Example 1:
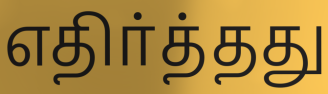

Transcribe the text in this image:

எதிர்த்தது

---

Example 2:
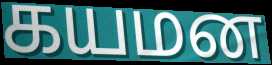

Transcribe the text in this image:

கயமன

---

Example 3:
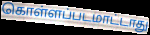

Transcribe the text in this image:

கொள்ளப்படமாட்டாது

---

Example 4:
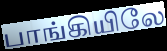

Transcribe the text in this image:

பாங்கியிலே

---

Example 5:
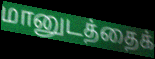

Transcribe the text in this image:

மானுடத்தைக்